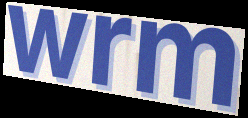
wrm